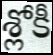
శ్లోకీ